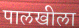
पालखीला